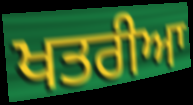
ਖਤਰੀਆ